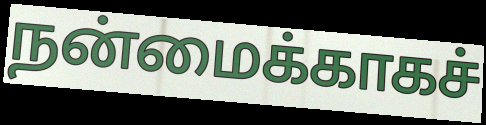
நன்மைக்காகச்